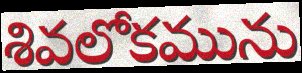
శివలోకమును